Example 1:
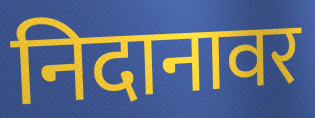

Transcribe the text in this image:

निदानावर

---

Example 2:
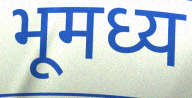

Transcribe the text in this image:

भूमध्य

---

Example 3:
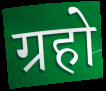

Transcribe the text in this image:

ग्रहो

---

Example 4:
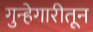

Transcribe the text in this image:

गुन्हेगारीतून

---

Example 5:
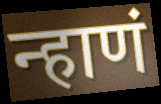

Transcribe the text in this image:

न्हाणं